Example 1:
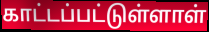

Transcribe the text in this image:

காட்டப்பட்டுள்ளாள்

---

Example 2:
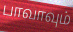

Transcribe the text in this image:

பாவாவும்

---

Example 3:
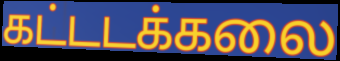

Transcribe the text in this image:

கட்டடக்கலை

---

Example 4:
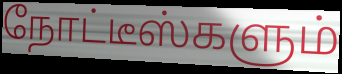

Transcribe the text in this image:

நோட்டீஸ்களும்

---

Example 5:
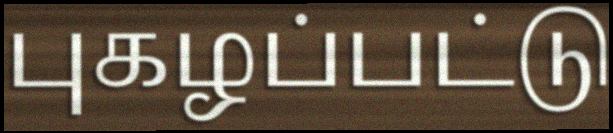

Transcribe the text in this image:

புகழப்பட்டு